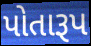
પોતારૂપ